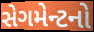
સેગમેન્ટનો